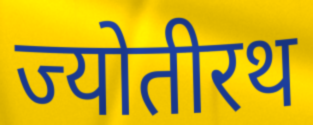
ज्योतीरथ